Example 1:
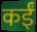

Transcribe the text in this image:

कईं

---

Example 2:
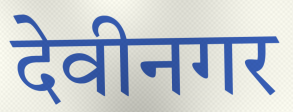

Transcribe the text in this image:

देवीनगर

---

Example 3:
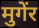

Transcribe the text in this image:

मुगेंर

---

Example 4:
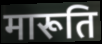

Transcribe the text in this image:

मारूति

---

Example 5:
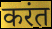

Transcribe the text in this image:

करंत